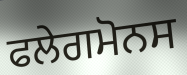
ਫਲੇਗਮੋਨਸ